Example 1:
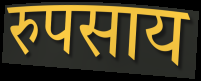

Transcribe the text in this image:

रुपसाय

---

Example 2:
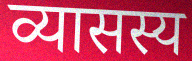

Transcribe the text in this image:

व्यासस्य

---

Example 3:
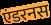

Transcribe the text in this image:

एंडरनस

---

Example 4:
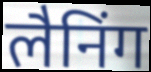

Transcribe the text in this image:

लैनिंग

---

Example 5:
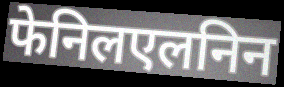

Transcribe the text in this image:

फेनिलएलनिन